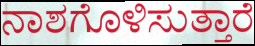
ನಾಶಗೊಳಿಸುತ್ತಾರೆ